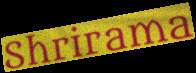
Shrirama